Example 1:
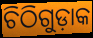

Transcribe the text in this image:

ଚିଠିଗୁଡ଼ାକ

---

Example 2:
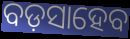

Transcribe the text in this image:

ବଡ଼ସାହେବ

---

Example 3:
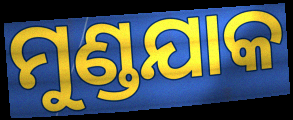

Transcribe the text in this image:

ମୁଣ୍ଡଯାକ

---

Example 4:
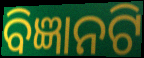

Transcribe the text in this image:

ବିଜ୍ଞାନଟି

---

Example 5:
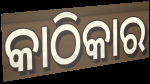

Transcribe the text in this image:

କାଠିକାର